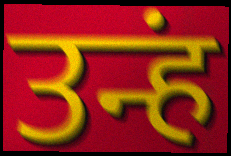
उन्हं